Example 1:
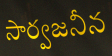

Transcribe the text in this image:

సార్వజనీన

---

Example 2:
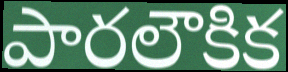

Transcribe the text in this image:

పారలౌకిక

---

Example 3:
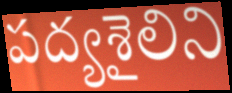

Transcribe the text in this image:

పద్యశైలిని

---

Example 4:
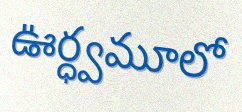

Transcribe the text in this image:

ఊర్ధ్వమూలో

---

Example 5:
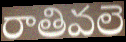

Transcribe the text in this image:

రాతివలె